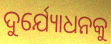
ଦୁର୍ଯ୍ୟୋଧନକୁ